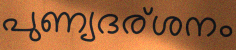
പുണ്യദര്ശനം